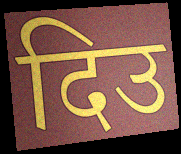
दिउ